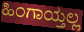
ಹಿಂಗಾಯ್ತಲ್ಲ